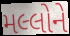
મલ્લોને